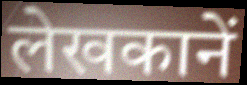
लेखकानें